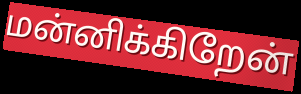
மன்னிக்கிறேன்